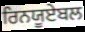
ਰਿਨਯੂਏਬਲ